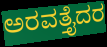
ಅರವತ್ತೈದರ